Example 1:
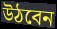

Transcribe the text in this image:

উঠবেন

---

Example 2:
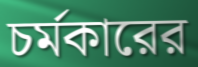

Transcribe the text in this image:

চর্মকারের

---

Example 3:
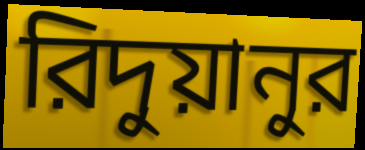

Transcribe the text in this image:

রিদুয়ানুর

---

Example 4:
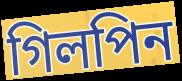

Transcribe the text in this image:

গিলপিন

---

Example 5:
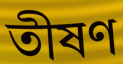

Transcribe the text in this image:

তীষণ